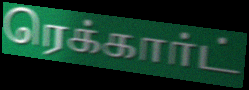
ரெக்கார்ட்